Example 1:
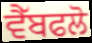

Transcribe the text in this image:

ਵੈੱਬਫਲੋ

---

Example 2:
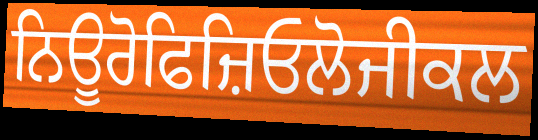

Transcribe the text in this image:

ਨਿਊਰੋਫਿਜ਼ਿਓਲੋਜੀਕਲ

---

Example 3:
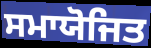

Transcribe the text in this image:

ਸਮਾਯੋਜਿਤ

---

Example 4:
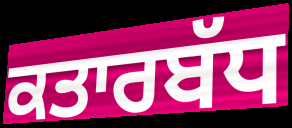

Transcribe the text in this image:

ਕਤਾਰਬੱਧ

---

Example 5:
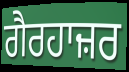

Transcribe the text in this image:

ਗੈਰਹਾਜ਼ਰ